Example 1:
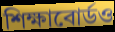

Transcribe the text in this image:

শিক্ষাবোর্ডও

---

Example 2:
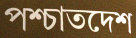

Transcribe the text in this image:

পশ্চাতদেশ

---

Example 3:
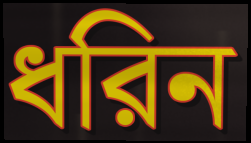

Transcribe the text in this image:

ধরিন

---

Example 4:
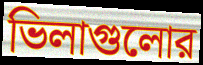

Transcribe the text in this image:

ভিলাগুলোর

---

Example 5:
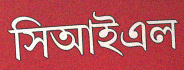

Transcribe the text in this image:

সিআইএল